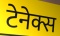
टेनेक्स